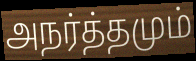
அநர்த்தமும்